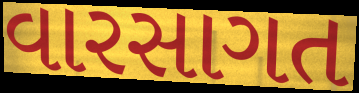
વારસાગત